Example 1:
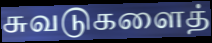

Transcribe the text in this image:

சுவடுகளைத்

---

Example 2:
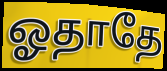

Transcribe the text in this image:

ஓதாதே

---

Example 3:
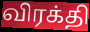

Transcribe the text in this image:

விரக்தி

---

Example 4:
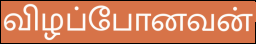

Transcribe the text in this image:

விழப்போனவன்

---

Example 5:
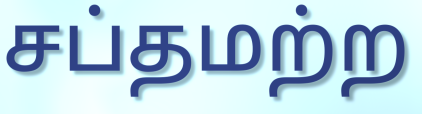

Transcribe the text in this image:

சப்தமற்ற